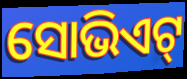
ସୋଭିଏଟ୍